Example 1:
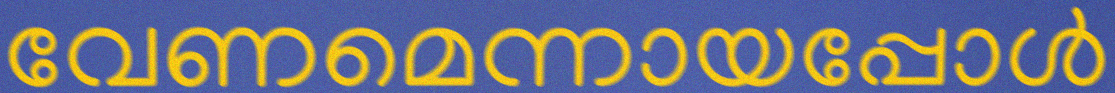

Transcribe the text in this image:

വേണമെന്നായപ്പോൾ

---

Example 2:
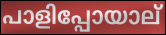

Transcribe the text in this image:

പാളിപ്പോയാല്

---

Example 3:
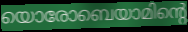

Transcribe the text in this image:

യൊരോബെയാമിന്റെ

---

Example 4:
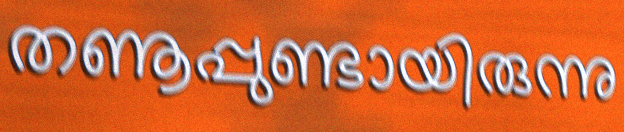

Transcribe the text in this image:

തണൂപ്പുണ്ടായിരുന്നു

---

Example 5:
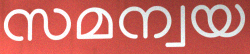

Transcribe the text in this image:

സമന്വയ